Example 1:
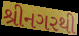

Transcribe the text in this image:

શ્રીનગરથી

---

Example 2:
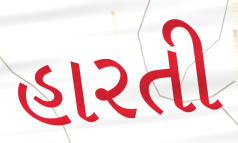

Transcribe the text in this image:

હારતી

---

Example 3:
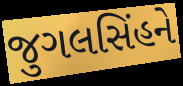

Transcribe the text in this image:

જુગલસિંહને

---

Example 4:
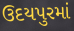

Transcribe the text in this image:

ઉદયપુરમાં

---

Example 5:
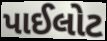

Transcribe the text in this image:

પાઈલોટ